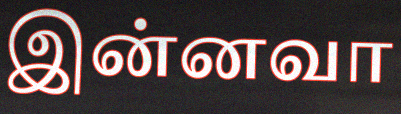
இன்னவா